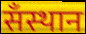
सँस्थान